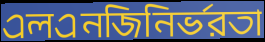
এলএনজিনির্ভরতা